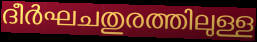
ദീർഘചതുരത്തിലുള്ള